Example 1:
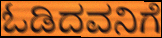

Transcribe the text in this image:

ಓಡಿದವನಿಗೆ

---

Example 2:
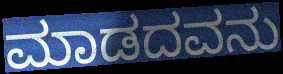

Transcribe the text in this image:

ಮಾಡದವನು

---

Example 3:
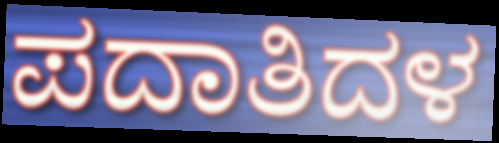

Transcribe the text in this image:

ಪದಾತಿದಳ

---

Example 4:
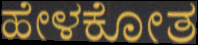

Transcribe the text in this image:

ಹೇಳಕೋತ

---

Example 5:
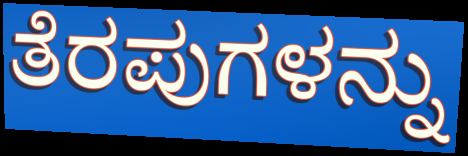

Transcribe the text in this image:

ತೆರಪುಗಳನ್ನು